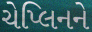
ચેપ્લિનને